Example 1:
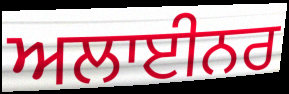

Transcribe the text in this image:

ਅਲਾਈਨਰ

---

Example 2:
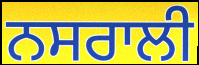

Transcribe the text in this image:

ਨਸਰਾਲੀ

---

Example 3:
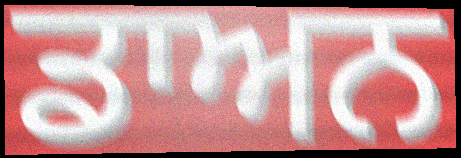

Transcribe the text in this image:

ਡਾਅਨ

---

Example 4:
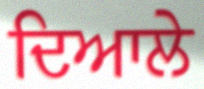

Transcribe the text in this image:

ਦਿਆਲੇ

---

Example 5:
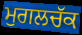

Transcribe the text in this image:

ਮੁਗਲਚੱਕ